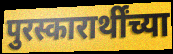
पुरस्कारार्थींच्या